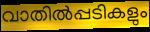
വാതിൽപ്പടികളും